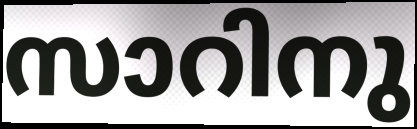
സാറിനു